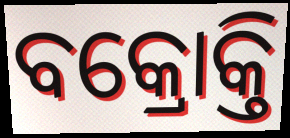
ବକ୍ରୋକ୍ତି